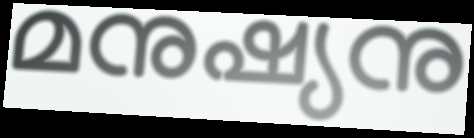
മനുഷ്യനു